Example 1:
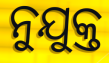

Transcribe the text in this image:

ନୁଯୁକ୍ତ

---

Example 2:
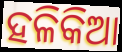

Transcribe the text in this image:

ହଳିକିଆ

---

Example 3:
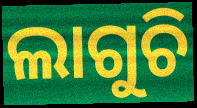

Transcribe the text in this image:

ଲାଗୁଚି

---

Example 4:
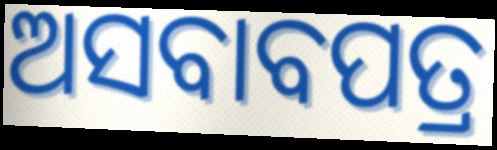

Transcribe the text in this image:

ଅସବାବପତ୍ର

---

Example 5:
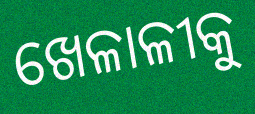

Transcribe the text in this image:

ଖେଳାଳୀକୁ